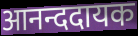
आनन्ददायक